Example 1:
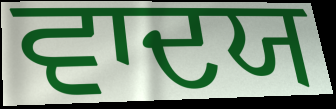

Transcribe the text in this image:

ਵਾਦਯ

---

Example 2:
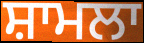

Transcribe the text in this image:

ਸ਼ਾਮਲਾ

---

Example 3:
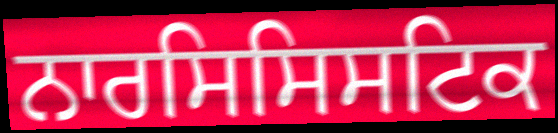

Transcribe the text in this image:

ਨਾਰਸਿਸਿਸਟਿਕ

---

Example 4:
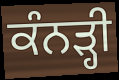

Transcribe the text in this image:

ਕੰਨੜ੍ਹੀ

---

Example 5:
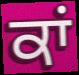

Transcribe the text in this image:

ਕਾਂ